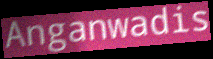
Anganwadis